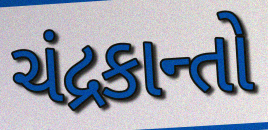
ચંદ્રકાન્તો